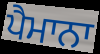
ਪੈਮਾਨਾ